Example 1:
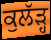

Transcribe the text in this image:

ਕੁਲੱੜ੍ਹ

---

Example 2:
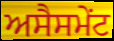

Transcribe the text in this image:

ਅਸੈਸਮੇਂਟ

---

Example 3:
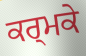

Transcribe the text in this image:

ਕਰ੍ਮਕੇ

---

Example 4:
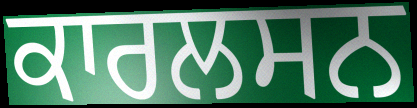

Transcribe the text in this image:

ਕਾਰਲਸਨ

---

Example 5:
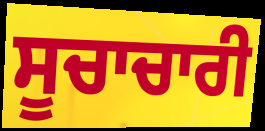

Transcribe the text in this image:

ਸੂਚਾਚਾਰੀ